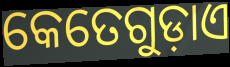
କେତେଗୁଡ଼ାଏ